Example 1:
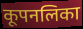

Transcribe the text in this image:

कूपनलिका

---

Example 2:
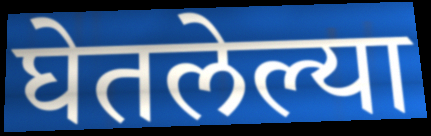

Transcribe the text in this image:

घेतलेल्या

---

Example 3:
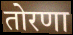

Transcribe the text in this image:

तोरणा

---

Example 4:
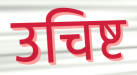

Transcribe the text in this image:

उचिष्ट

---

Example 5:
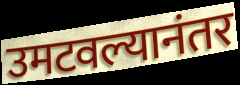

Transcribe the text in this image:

उमटवल्यानंतर